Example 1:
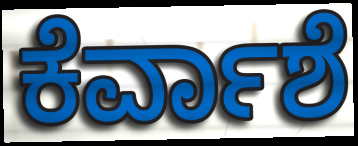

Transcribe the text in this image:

ಕೆರ್ವಾಶೆ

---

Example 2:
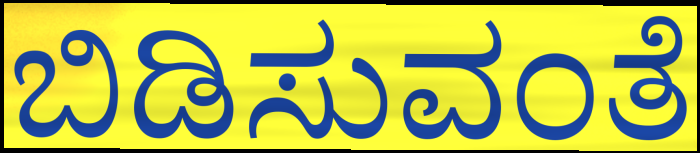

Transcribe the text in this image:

ಬಿಡಿಸುವಂತೆ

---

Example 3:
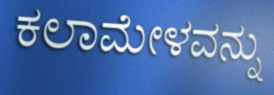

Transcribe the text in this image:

ಕಲಾಮೇಳವನ್ನು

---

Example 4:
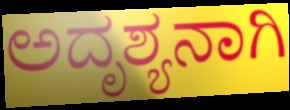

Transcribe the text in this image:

ಅದೃಶ್ಯನಾಗಿ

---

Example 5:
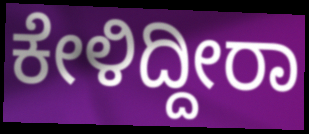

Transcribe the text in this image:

ಕೇಳಿದ್ದೀರಾ